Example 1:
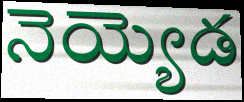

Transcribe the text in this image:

నెయ్యెడ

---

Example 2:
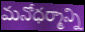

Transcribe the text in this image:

మనోధర్మాన్ని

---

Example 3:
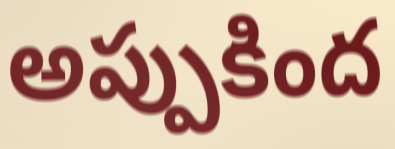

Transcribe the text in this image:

అప్పుకింద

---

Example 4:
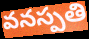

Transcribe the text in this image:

వనస్పతి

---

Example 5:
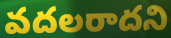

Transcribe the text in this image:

వదలరాదని